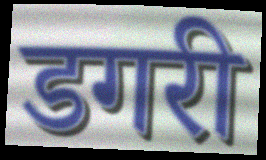
डगरी